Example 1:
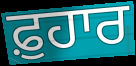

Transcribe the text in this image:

ਫ਼ੁਹਾਰ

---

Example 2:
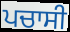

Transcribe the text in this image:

ਪਚਾਸੀ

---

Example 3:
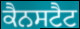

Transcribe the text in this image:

ਕੈਨਸਟੈਟ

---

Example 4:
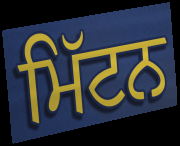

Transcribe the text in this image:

ਮਿੱਟਨ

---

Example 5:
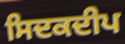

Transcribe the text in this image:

ਸਿਦਕਦੀਪ